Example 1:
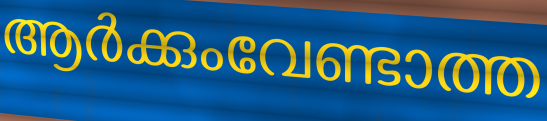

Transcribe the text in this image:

ആർക്കുംവേണ്ടാത്ത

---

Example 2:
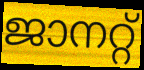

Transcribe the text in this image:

ജാനറ്റ്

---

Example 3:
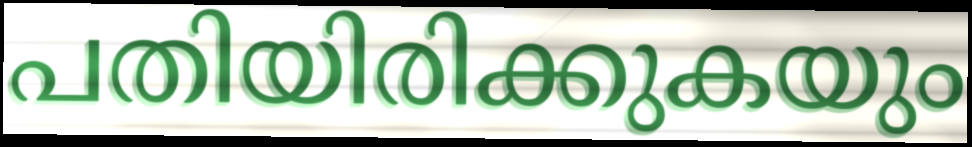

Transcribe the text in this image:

പതിയിരിക്കുകയും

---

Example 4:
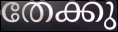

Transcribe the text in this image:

തേക്കു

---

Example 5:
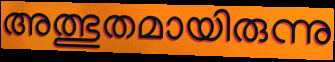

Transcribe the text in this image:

അത്ഭുതമായിരുന്നു